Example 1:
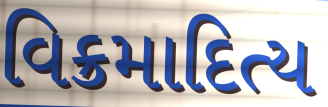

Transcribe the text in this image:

વિક્રમાદિત્‍ય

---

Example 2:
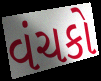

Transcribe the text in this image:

વંચકો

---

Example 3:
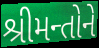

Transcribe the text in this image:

શ્રીમન્તોને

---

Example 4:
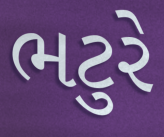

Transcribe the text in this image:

ભટુરે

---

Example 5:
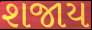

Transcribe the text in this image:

શજાય